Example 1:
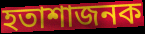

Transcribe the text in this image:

হতাশাজনক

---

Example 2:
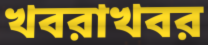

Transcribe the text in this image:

খবরাখবর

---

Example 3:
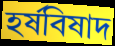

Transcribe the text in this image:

হর্ষবিষাদ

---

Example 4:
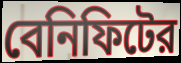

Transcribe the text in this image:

বেনিফিটের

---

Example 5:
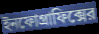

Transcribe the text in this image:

ইনফোগ্রাফিক্সের